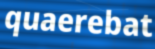
quaerebat